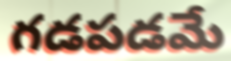
గడపడమే